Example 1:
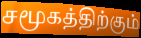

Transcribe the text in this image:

சமூகத்திற்கும்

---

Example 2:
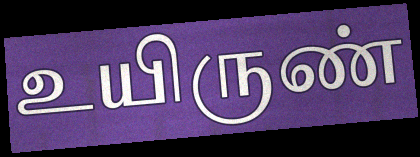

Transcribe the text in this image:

உயிருண்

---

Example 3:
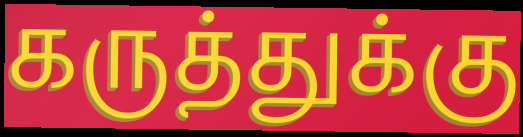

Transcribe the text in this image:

கருத்துக்கு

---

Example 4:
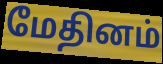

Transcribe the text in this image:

மேதினம்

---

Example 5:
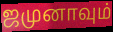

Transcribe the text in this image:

ஜமுனாவும்